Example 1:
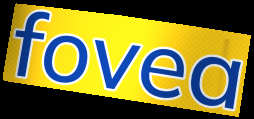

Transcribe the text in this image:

fovea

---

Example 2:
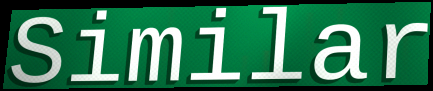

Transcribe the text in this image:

Similar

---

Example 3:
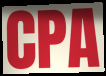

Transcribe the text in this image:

CPA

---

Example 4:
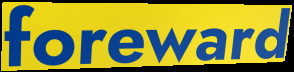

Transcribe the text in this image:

foreward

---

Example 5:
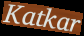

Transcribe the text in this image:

Katkar